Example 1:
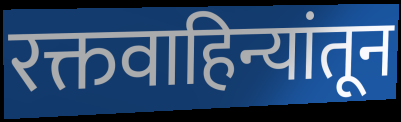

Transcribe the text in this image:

रक्तवाहिन्यांतून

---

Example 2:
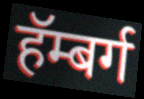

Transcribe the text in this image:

हॅम्बर्ग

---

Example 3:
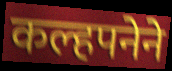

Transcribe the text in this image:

कल्हपनेने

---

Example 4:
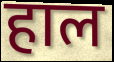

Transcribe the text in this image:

हाल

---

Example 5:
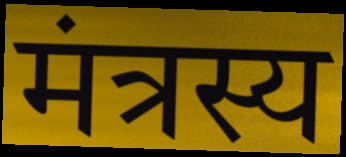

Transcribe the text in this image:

मंत्रस्य